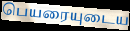
பெயரையுடைய